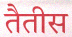
तैतीस